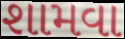
શામવા